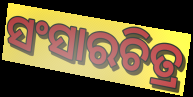
ସଂସାରଚିତ୍ର